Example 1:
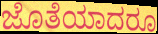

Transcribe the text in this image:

ಜೊತೆಯಾದರೂ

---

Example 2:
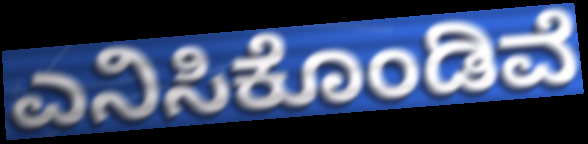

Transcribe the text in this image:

ಎನಿಸಿಕೊಂಡಿವೆ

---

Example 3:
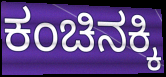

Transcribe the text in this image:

ಕಂಚಿನಕ್ಕಿ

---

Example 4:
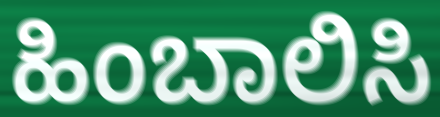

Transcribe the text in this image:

ಹಿಂಬಾಲಿಸಿ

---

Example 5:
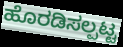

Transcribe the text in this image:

ಹೊರಡಿಸಲ್ಪಟ್ಟ